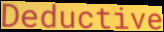
Deductive